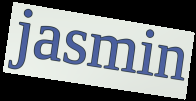
jasmin